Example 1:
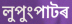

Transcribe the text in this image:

লুপুংপাটৰ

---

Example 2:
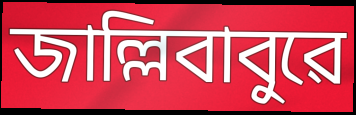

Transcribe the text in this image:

জাল্লিবাবুৱে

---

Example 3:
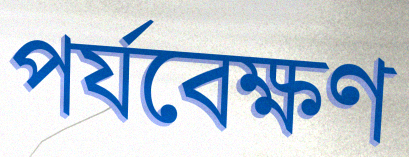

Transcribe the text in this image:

পৰ্যবেক্ষণ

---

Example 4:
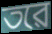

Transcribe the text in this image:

তৱে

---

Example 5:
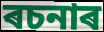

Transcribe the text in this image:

ৰচনাৰ